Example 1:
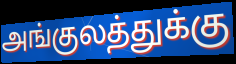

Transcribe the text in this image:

அங்குலத்துக்கு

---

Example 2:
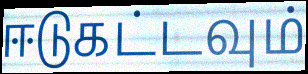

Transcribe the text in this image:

ஈடுகட்டவும்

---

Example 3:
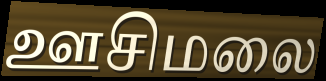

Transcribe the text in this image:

ஊசிமலை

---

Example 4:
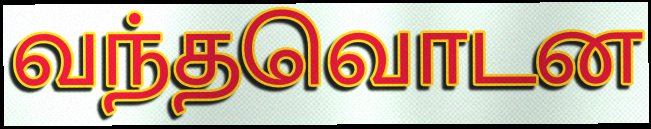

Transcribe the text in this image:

வந்தவொடன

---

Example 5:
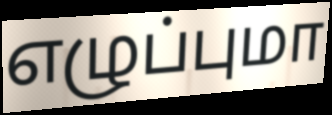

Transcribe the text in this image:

எழுப்புமா